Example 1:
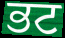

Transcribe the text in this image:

ਭਟ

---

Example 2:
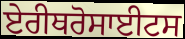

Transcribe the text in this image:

ਏਰੀਥਰੋਸਾਈਟਸ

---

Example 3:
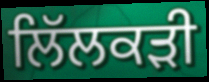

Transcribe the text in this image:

ਲਿੱਲਕੜੀ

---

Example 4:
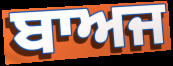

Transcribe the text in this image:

ਬਾਅਜ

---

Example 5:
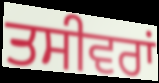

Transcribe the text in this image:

ਤਸੀਵਰਾਂ